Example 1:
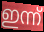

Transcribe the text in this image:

ഇന്ന്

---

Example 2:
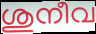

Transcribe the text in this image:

ശുനീവ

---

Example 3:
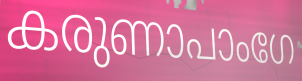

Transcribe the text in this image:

കരുണാപാംഗേ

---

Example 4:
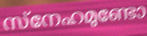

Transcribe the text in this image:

സ്‌നേഹമുണ്ടോ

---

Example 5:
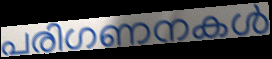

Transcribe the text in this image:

പരിഗണനകൾ